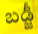
బడ్జీ